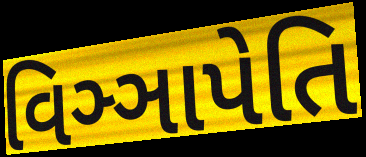
વિઞ્ઞાપેતિ